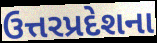
ઉત્તરપ્રદેશના